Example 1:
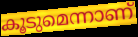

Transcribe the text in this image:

കൂടുമെന്നാണ്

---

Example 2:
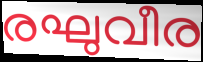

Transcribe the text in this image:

രഘുവീര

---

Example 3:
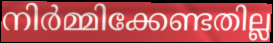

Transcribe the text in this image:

നിർമ്മിക്കേണ്ടതില്ല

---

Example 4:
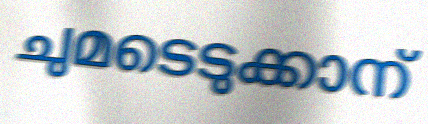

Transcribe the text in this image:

ചുമടെടുക്കാന്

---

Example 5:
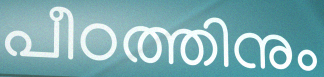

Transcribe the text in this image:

പീഠത്തിനും